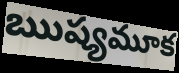
ఋష్యమూక